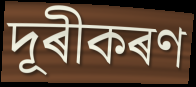
দূৰীকৰণ